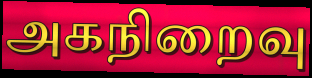
அகநிறைவு